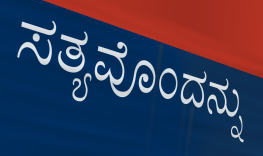
ಸತ್ಯವೊಂದನ್ನು